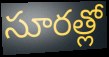
సూరత్లో